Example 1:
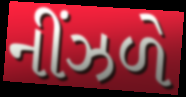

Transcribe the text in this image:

નીંઝળે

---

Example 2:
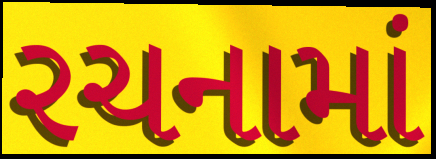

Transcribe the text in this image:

રચનામાં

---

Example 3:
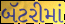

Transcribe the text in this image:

બૅટરીમાં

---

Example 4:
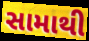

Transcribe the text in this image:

સામાથી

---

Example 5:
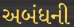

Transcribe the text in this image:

અબંધની